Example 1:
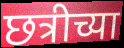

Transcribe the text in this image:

छत्रीच्या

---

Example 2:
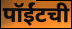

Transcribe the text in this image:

पॉईंटची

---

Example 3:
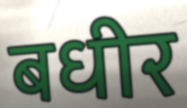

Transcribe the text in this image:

बधीर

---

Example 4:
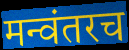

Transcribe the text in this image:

मन्वंतरच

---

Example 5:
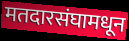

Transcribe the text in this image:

मतदारसंघामधून